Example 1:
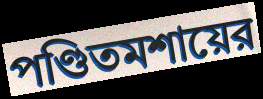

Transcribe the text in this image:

পণ্ডিতমশায়ের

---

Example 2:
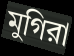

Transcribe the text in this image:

মুগিরা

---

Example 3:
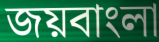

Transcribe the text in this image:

জয়বাংলা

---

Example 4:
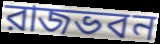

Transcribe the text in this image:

রাজভবন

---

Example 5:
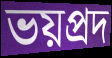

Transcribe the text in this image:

ভয়প্রদ